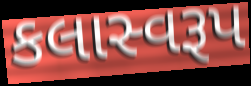
કલાસ્વરૂપ